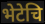
भेटेचि